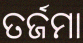
ତର୍ଜମା